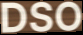
DSO